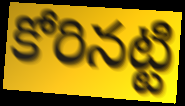
కోరినట్టి